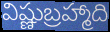
విష్ణుబ్రహ్మాది